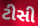
ટીસી